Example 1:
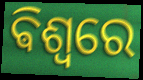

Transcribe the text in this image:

ଵିଶ୍ୱରେ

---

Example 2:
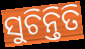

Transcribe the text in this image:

ସୁଚିନ୍ତିତି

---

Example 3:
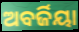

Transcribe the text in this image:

ଅବର୍ଜିୟା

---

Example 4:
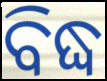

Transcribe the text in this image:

ବିଦ୍ଧ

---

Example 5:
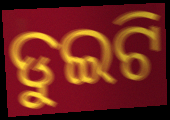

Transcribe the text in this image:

ଡୁଇଟି